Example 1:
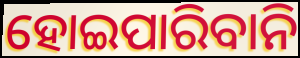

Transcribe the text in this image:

ହୋଇପାରିବାନି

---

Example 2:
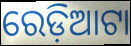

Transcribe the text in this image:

ରେଡ଼ିଆଟା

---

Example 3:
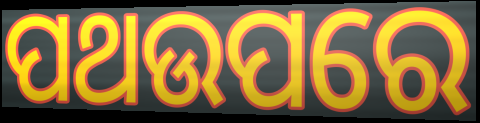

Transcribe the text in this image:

ପଥଉପରେ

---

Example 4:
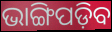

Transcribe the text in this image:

ଭାଙ୍ଗିପଡ଼ିବ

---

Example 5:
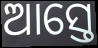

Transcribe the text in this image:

ଆସ୍ତେ